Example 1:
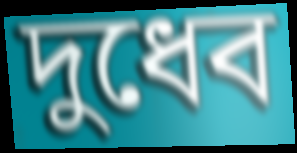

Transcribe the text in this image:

দুধেব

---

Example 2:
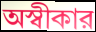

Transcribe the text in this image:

অস্বীকার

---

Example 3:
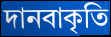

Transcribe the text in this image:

দানবাকৃতি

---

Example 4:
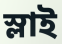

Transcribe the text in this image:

স্লাই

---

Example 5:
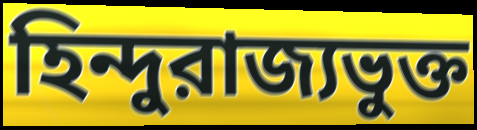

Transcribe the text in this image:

হিন্দুরাজ্যভুক্ত